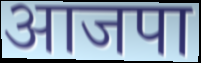
आजपा